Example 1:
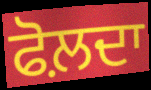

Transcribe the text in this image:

ਫੋਲ਼ਦਾ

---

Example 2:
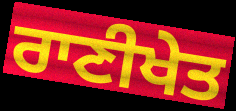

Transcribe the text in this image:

ਰਾਣੀਖੇਤ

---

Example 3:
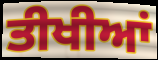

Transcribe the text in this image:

ਤੀਖੀਆਂ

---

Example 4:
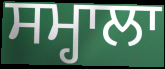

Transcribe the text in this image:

ਸਮ੍ਹ੍ਹਾਲਾ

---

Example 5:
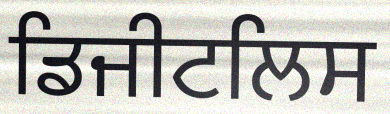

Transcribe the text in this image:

ਡਿਜੀਟਲਿਸ